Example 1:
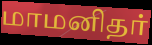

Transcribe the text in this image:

மாமனிதர்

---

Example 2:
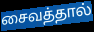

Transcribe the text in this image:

சைவத்தால்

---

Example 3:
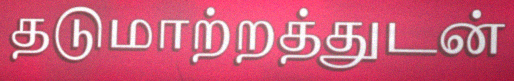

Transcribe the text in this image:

தடுமாற்றத்துடன்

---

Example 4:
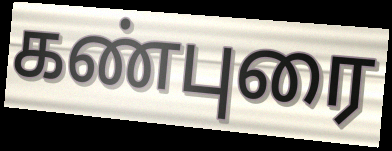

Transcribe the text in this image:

கண்புரை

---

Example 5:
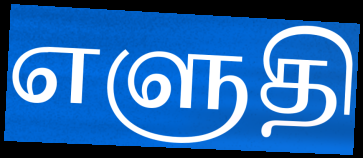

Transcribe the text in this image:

எளுதி